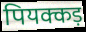
पियक्कड़